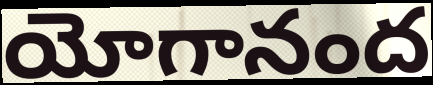
యోగానంద